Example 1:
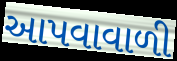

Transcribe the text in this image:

આપવાવાળી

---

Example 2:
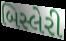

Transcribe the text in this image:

બિસ્લેરી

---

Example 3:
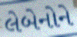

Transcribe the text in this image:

લેબેનોને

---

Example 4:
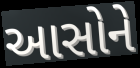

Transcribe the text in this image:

આસોને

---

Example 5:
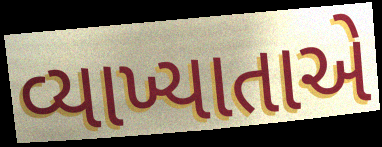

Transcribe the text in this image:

વ્યાખ્યાતાએ